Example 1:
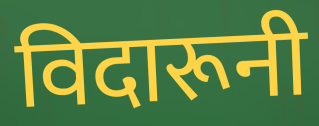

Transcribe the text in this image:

विदारूनी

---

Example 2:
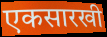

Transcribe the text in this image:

एकसारखी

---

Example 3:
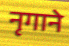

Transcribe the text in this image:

नृगाने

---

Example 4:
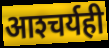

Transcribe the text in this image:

आश्‍चर्यही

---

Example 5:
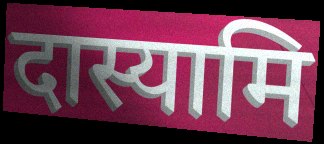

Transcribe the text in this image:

दास्यामि